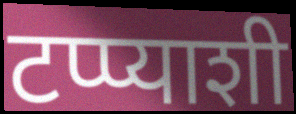
टप्प्याशी